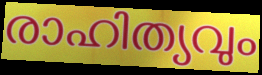
രാഹിത്യവും